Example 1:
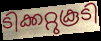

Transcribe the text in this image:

ടിക്കറ്റുകൂടി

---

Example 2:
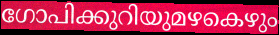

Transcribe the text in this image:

ഗോപിക്കുറിയുമഴകെഴും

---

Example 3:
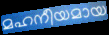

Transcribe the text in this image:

മഹനീയമായ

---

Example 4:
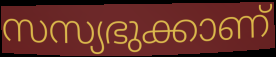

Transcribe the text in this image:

സസ്യഭുക്കാണ്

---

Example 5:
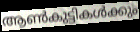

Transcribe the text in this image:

ആൺകുട്ടികൾക്കും